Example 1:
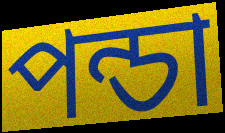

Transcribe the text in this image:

পন্ডা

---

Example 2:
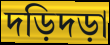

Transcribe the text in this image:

দড়িদড়া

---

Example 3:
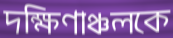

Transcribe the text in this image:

দক্ষিণাঞ্চলকে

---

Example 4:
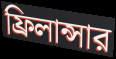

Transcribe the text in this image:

ফ্রিলান্সার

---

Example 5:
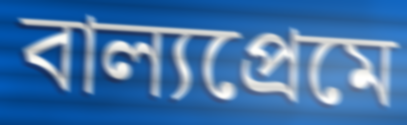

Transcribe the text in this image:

বাল্যপ্রেমে